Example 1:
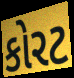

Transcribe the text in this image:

કોરટ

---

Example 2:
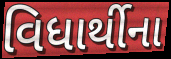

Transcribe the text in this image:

વિધાર્થીના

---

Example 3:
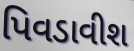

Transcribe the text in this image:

પિવડાવીશ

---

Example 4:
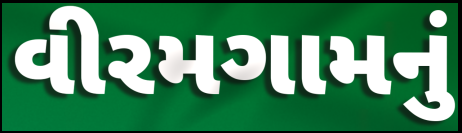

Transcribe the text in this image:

વીરમગામનું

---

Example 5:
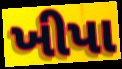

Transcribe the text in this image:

ખીપા